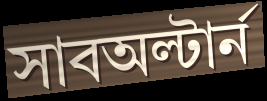
সাবঅল্টার্ন